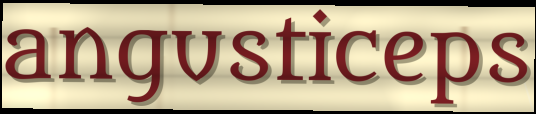
angusticeps